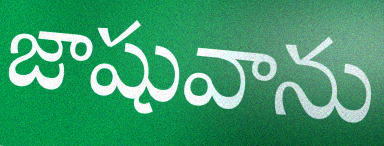
జాషువాను